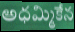
అధమ్మికేన